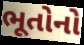
ભૂતોનો